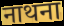
नाथना